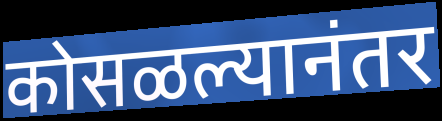
कोसळल्यानंतर